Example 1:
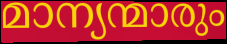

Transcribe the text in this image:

മാന്യന്മാരും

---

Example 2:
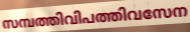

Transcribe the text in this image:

സമ്പത്തിവിപത്തിവസേന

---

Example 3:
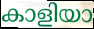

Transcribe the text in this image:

കാളിയാ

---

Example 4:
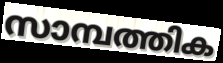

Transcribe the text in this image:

സാമ്പത്തിക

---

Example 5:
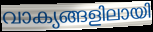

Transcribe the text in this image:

വാക്യങ്ങളിലായി